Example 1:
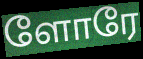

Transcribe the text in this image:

ளோரே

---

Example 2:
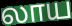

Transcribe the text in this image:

லாய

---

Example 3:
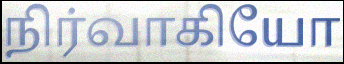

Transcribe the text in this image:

நிர்வாகியோ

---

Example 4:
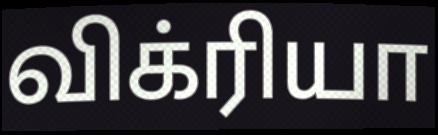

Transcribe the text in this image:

விக்ரியா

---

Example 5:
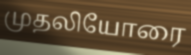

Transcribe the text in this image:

முதலியோரை